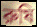
রুষি